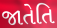
જાતેતિ